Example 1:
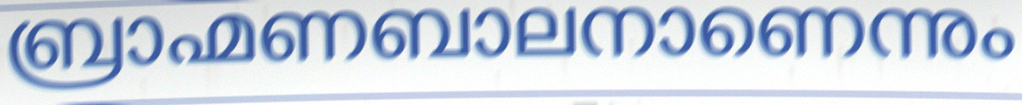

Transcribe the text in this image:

ബ്രാഹ്മണബാലനാണെന്നും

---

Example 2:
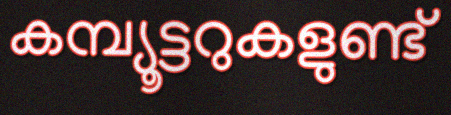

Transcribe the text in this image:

കമ്പ്യൂട്ടറുകളുണ്ട്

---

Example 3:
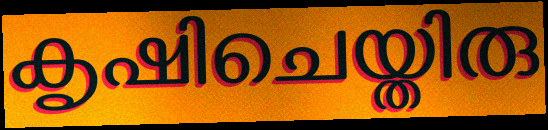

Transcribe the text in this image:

കൃഷിചെയ്തിരു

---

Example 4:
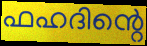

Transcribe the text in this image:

ഫഹദിന്റെ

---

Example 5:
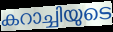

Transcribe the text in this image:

കറാച്ചിയുടെ